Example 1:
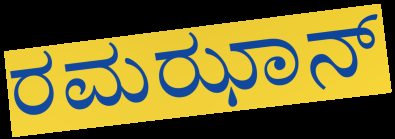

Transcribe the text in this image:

ರಮಝಾನ್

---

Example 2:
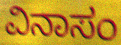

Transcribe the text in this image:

ವಿನಾಸಂ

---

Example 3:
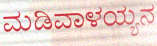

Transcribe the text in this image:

ಮಡಿವಾಳಯ್ಯನ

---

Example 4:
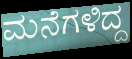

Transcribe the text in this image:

ಮನೆಗಳಿದ್ದ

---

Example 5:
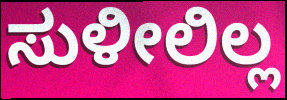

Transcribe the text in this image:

ಸುಳೀಲಿಲ್ಲ